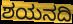
ಶಯನದಿ